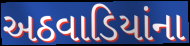
અઠવાડિયાંના